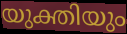
യുക്തിയും